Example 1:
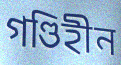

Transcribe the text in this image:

গণ্ডিহীন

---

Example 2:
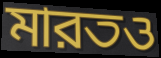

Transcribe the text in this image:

মারতও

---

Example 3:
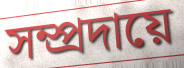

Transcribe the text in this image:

সম্প্রদায়ে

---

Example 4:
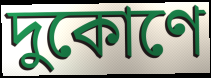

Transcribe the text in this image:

দুকোণে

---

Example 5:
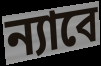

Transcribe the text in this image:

ন্যাবে